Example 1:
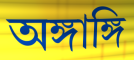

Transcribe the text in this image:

অঙ্গাঙ্গি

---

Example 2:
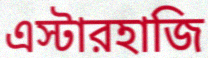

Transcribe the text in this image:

এস্টারহাজি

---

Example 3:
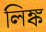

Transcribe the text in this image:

লিঙ্ক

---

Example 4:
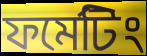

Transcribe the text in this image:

ফর্মেটিং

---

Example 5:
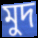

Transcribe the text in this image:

মুদ